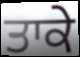
ਤਾਕੇ